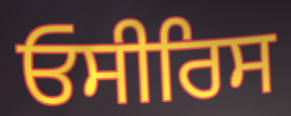
ਓਸੀਰਿਸ